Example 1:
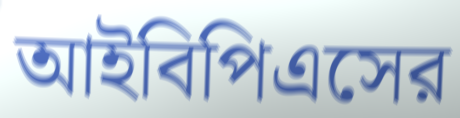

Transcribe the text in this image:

আইবিপিএসের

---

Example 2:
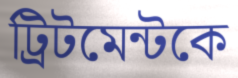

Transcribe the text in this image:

ট্রিটমেন্টকে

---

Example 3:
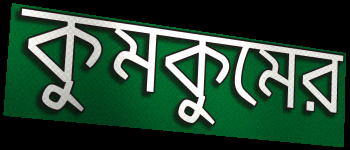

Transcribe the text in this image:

কুমকুমের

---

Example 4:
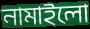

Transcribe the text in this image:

নামাইলো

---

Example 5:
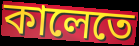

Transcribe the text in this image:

কালেতে